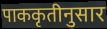
पाककृतीनुसार